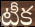
టీక